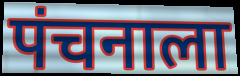
पंचनाला